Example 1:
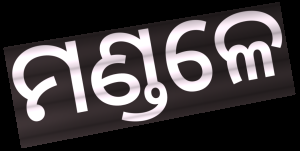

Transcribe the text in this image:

ମଣ୍ଡଳେ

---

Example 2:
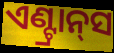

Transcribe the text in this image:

ଏଣ୍ଟ୍ରାନ୍‌ସ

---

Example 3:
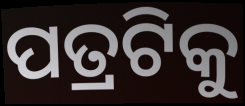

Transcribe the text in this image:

ପତ୍ରଟିକୁ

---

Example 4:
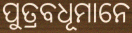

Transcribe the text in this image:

ପୁତ୍ରବଧୂମାନେ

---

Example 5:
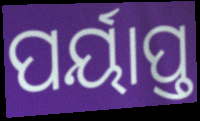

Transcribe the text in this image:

ପର୍ୟାପ୍ତ